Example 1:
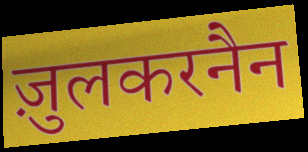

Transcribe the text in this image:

ज़ुलकरनैन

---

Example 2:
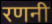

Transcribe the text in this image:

रणनी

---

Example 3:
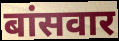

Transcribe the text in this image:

बांसवार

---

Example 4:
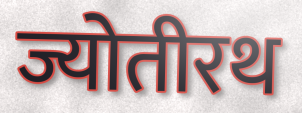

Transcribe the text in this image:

ज्योतीरथ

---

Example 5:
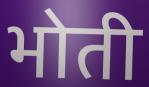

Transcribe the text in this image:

भोती